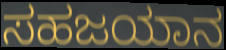
ಸಹಜಯಾನ